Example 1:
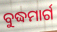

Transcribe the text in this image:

ବୁଦ୍ଧମାର୍ଗ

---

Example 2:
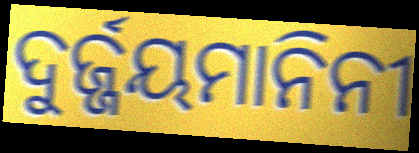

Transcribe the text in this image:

ଦୁର୍ଜ୍ଜୟମାନିନୀ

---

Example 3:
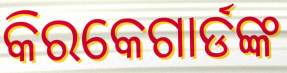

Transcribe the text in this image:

କିରକେଗାର୍ଡଙ୍କ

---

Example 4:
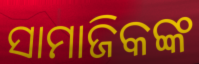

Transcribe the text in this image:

ସାମାଜିକଙ୍କ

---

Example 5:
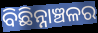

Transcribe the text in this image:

ବିଛିନ୍ନାଞ୍ଚଳର